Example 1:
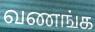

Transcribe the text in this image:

வணங்க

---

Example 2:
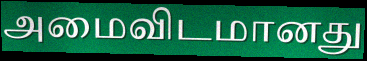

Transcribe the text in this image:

அமைவிடமானது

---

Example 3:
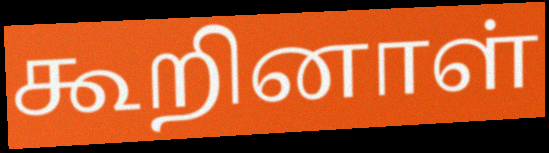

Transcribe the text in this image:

கூறினாள்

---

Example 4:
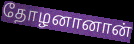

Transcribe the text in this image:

தோழனானான்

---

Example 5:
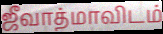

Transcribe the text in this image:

ஜீவாத்மாவிடம்